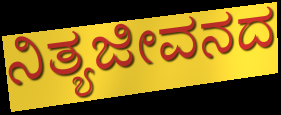
ನಿತ್ಯಜೀವನದ